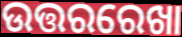
ଉତ୍ତରରେଖା